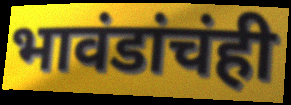
भावंडांचंही